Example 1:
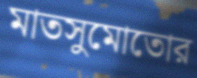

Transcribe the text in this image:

মাতসুমোতোর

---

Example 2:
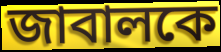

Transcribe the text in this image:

জাবালকে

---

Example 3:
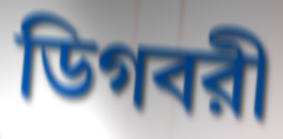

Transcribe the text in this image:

ডিগবরী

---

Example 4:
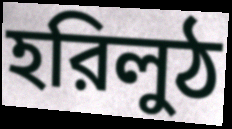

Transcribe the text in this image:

হরিলুঠ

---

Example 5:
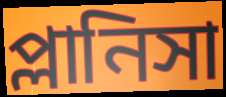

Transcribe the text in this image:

প্লানিসা